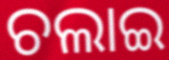
ଚଲାଇ